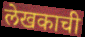
लेखकाची